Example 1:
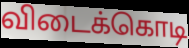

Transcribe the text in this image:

விடைக்கொடி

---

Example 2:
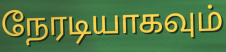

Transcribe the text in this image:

நேரடியாகவும்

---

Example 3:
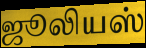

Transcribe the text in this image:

ஜூலியஸ்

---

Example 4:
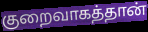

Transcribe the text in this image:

குறைவாகத்தான்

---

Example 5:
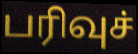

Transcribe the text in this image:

பரிவுச்